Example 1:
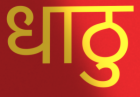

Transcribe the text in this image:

धाठु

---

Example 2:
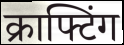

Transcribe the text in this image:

क्राफ्टिंग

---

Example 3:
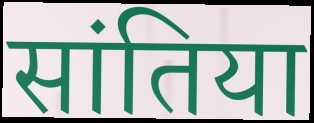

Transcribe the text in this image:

सांतिया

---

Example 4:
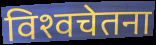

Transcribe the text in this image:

विश्वचेतना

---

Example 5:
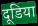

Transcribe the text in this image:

दूडिया